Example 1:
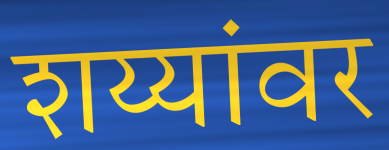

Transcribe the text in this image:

शय्यांवर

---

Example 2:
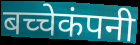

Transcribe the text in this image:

बच्चेकंपनी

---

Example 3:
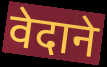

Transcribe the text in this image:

वेदाने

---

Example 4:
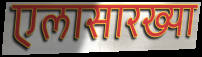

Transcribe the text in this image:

एलासारख्या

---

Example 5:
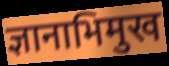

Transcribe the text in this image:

ज्ञानाभिमुख